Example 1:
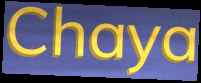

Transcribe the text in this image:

Chaya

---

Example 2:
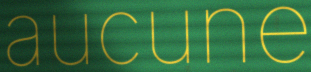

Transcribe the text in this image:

aucune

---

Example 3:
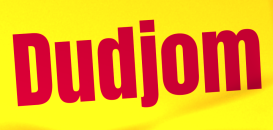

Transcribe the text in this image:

Dudjom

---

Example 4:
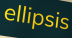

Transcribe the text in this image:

ellipsis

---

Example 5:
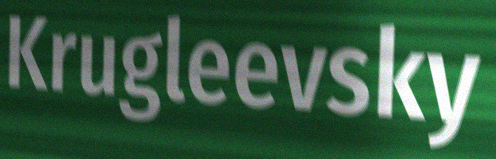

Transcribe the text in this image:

Krugleevsky